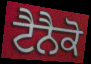
ਟੈਨੈਕੋ